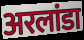
अरलांडा